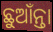
ଛୁଆଁନ୍ତା